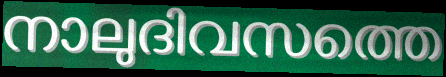
നാലുദിവസത്തെ